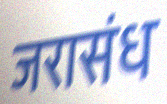
जरासंध